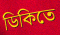
ডিকিতে